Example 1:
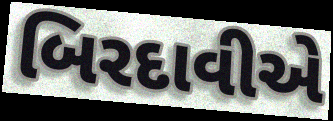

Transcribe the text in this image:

બિરદાવીએ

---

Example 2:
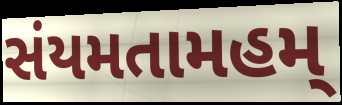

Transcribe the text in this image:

સંયમતામહમ્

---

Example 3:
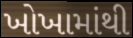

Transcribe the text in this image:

ખોખામાંથી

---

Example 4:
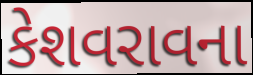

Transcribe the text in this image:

કેશવરાવના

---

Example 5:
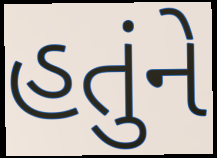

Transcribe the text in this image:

હતુંને